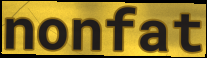
nonfat